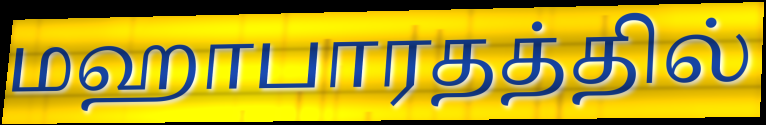
மஹாபாரதத்தில்